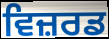
ਵਿਜ਼ਰਡ